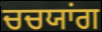
ਚਚਯਾਂਗ